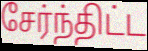
சேர்ந்திட்ட